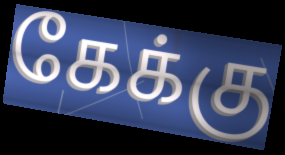
கேக்கு